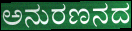
ಅನುರಣನದ